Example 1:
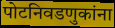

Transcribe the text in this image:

पोटनिवडणुकांना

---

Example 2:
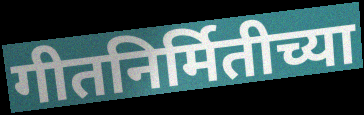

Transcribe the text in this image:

गीतनिर्मितीच्या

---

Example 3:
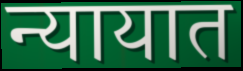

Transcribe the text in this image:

न्यायात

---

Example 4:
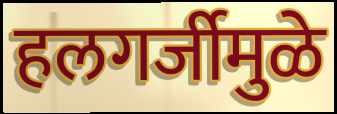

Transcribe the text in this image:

हलगर्जीमुळे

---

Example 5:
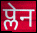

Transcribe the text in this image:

प्लेन